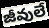
జీవులే